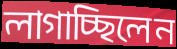
লাগাচ্ছিলেন